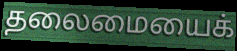
தலைமையைக்